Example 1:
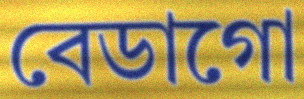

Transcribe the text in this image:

বেডাগো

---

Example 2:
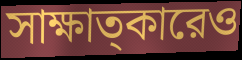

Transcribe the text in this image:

সাক্ষাত্কারেও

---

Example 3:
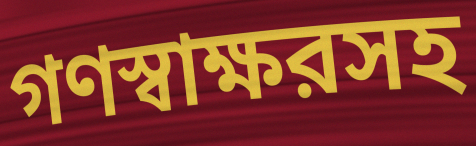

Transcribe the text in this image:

গণস্বাক্ষরসহ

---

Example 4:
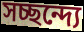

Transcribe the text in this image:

সচ্ছন্দ্যে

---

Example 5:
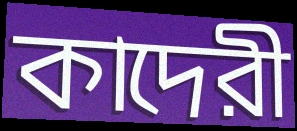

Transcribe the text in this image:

কাদেরী